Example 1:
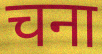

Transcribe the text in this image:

चना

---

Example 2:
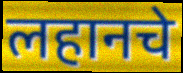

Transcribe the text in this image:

लहानचे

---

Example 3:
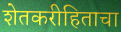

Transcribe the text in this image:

शेतकरीहिताचा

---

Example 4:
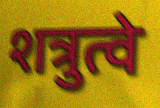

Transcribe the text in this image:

शत्रुत्वे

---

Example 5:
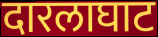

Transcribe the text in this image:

दारलाघाट